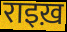
राइख़